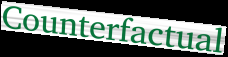
Counterfactual